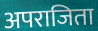
अपराजिता